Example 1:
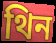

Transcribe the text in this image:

থিন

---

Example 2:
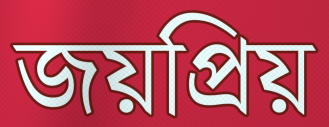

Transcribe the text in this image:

জয়প্রিয়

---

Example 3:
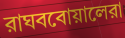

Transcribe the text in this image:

রাঘববোয়ালেরা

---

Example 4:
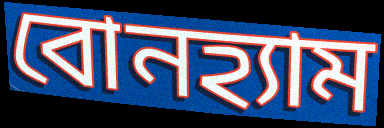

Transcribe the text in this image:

বোনহ্যাম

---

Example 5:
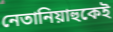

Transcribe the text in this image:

নেতানিয়াহুকেই